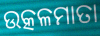
ଉତ୍କଳମାତା